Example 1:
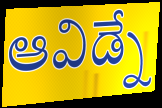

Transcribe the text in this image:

ఆవిడ్నే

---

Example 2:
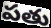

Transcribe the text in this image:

పతు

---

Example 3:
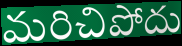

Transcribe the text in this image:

మరిచిపోదు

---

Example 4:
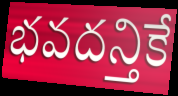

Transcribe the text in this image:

భవదన్తికే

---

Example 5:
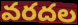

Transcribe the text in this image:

వరదల